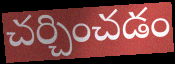
చర్చించడం